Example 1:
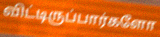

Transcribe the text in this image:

விட்டிருப்பார்களோ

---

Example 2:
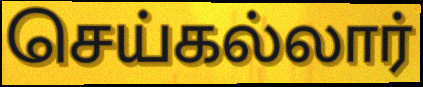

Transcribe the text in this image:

செய்கல்லார்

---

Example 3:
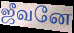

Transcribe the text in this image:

ஜீவனே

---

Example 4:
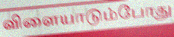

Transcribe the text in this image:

விளையாடும்போது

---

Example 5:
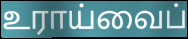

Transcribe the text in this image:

உராய்வைப்